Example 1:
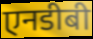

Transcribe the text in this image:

एनडीबी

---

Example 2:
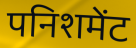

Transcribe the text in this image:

पनिशमेंट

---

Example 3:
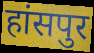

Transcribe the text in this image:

हांसपुर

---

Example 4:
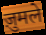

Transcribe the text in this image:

ज़ुमले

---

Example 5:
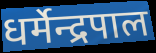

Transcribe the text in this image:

धर्मेन्द्रपाल